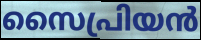
സൈപ്രിയൻ